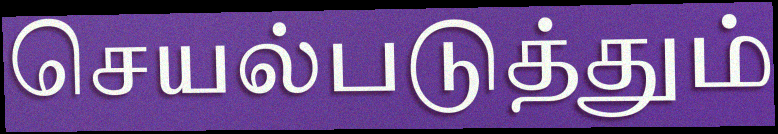
செயல்படுத்தும்